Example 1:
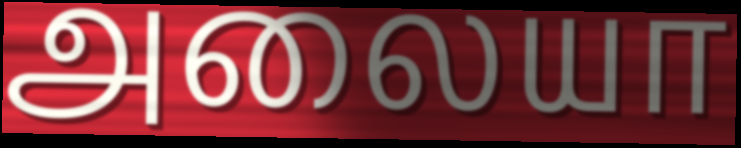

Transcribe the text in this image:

அலையா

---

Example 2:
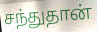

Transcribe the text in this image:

சந்துதான்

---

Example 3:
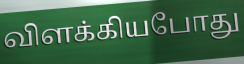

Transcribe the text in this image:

விளக்கியபோது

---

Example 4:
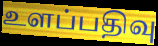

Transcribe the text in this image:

உளப்பதிவு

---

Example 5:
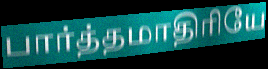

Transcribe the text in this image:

பார்த்தமாதிரியே